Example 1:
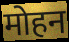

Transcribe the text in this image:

मोहन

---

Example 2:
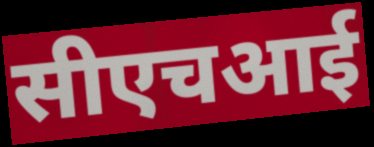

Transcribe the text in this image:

सीएचआई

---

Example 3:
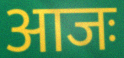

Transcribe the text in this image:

आजः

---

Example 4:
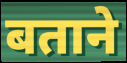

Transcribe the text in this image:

बताने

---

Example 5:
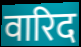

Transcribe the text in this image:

वारिद